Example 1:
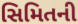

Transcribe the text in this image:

સિમિતની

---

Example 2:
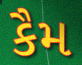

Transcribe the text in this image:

કૈમ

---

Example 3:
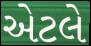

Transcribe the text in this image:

એટલે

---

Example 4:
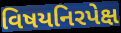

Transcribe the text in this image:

વિષયનિરપેક્ષ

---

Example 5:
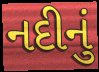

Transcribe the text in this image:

નદીનું